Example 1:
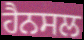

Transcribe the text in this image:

ਹੈਨਸਲ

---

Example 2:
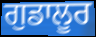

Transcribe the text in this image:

ਗੁਡਾਲੂਰ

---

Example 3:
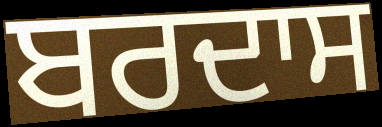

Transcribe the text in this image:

ਬਰਦਾਸ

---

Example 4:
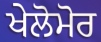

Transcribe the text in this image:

ਖੇਲੋਮੋਰ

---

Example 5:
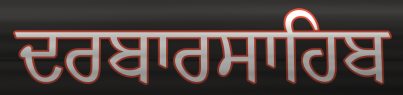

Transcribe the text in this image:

ਦਰਬਾਰਸਾਹਿਬ